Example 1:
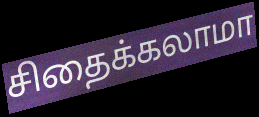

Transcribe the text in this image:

சிதைக்கலாமா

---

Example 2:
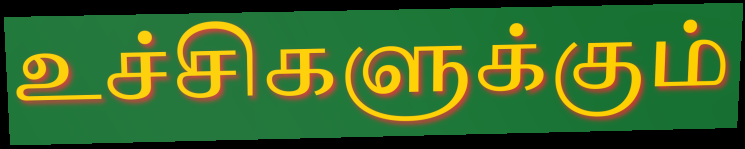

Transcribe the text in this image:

உச்சிகளுக்கும்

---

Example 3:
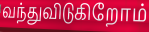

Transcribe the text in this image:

வந்துவிடுகிறோம்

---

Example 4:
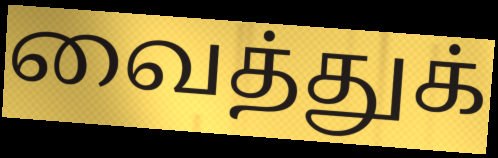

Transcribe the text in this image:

வைத்துக்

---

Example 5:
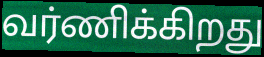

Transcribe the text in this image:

வர்ணிக்கிறது